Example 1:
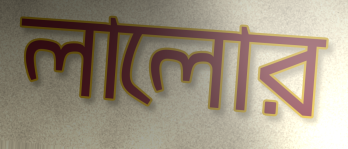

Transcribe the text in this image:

লালোর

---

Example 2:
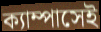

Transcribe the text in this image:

ক্যাম্পাসেই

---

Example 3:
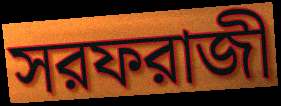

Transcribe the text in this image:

সরফরাজী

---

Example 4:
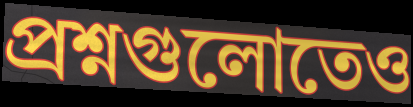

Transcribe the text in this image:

প্রশ্নগুলোতেও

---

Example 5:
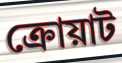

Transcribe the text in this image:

ক্রোয়াট